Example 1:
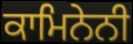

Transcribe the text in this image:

ਕਾਮਿਨੇਨੀ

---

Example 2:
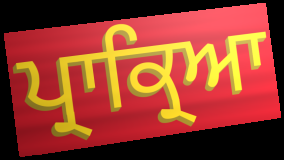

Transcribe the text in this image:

ਪ੍ਰਾਕ੍ਰਿਆ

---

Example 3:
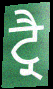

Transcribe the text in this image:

ਟ੍ਰੈ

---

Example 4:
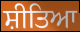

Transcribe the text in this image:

ਸ਼ੀਤਿਆ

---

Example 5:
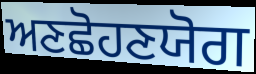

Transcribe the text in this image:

ਅਣਛੋਹਣਯੋਗ